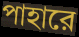
পাহারে